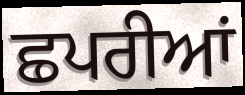
ਛਪਰੀਆਂ